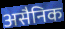
असैनिक